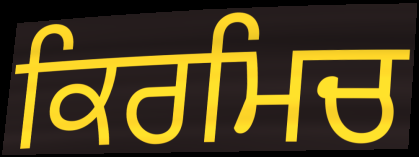
ਕਿਰਮਿਚ